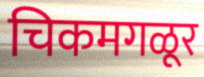
चिकमगळूर